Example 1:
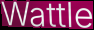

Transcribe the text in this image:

Wattle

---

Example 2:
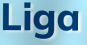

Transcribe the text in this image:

Liga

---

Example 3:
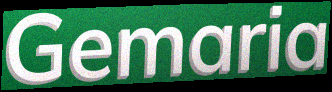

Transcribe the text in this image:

Gemaria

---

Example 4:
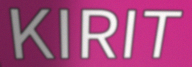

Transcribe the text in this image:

KIRIT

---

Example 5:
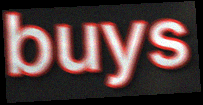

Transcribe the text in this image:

buys